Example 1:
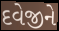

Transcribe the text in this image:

દવેજીને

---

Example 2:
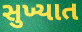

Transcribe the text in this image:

સુખ્યાત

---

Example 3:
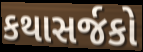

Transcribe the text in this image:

કથાસર્જકો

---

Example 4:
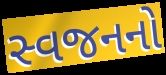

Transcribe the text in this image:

સ્વજનનો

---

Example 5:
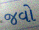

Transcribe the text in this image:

જવો